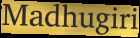
Madhugiri